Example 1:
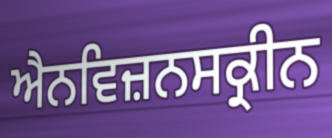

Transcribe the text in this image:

ਐਨਵਿਜ਼ਨਸਕ੍ਰੀਨ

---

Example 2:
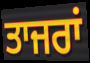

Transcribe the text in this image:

ਤਾਜਰਾਂ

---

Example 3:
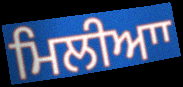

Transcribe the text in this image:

ਮਿਲੀਆਾ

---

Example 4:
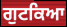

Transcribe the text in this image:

ਗੁਟਕਿਆ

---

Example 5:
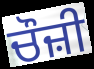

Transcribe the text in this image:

ਚੌਜ਼ੀ